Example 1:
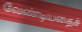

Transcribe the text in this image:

வேண்டியதைச்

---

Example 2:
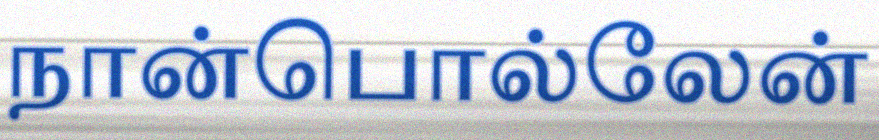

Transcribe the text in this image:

நான்பொல்லேன்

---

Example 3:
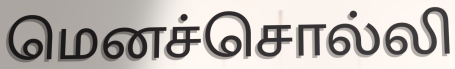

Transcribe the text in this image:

மெனச்சொல்லி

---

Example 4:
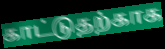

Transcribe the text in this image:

காட்டுதற்காக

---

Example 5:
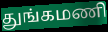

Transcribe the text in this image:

துங்கமணி